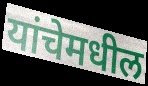
यांचेमधील